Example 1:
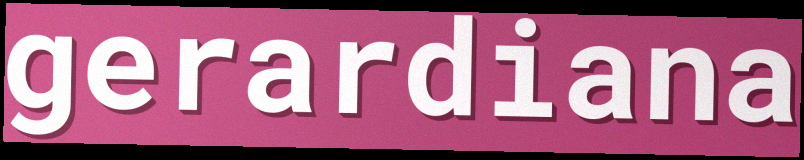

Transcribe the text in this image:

gerardiana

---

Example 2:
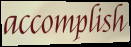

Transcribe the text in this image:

accomplish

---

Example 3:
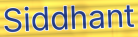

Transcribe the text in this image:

Siddhant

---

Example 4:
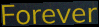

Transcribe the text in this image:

Forever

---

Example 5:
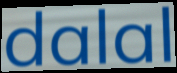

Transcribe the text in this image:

dalal